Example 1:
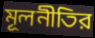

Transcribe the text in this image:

মূলনীতির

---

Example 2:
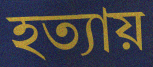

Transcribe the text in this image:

হত্যায়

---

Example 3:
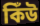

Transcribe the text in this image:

কিঁউ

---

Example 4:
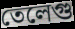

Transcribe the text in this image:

তেলেগু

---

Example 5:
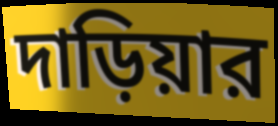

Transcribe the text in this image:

দাড়িয়ার